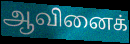
ஆவினைக்